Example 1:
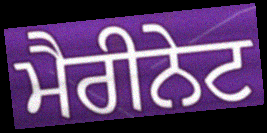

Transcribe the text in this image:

ਮੈਰੀਨੇਟ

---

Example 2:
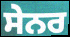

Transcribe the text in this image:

ਸੇਨਰ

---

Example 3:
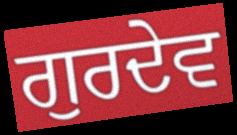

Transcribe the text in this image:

ਗੁਰਦੇਵ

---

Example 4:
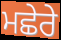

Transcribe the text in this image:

ਮਛੇਰੇ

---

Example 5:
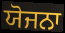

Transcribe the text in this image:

ਯੋਜਨਾ